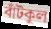
বাঁটকুল